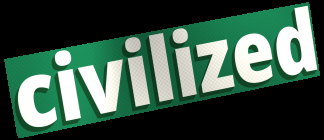
civilized